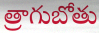
త్రాగుబోతు